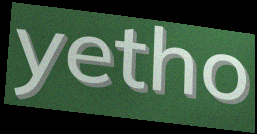
yetho